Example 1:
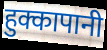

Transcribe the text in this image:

हुक्कापानी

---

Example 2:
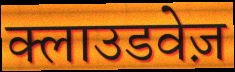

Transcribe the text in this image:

क्लाउडवेज़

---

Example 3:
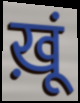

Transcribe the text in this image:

ख़ूं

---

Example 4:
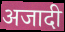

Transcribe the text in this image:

अजादी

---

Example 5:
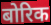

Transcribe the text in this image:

बोरिक